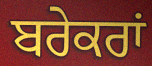
ਬਰੇਕਰਾਂ